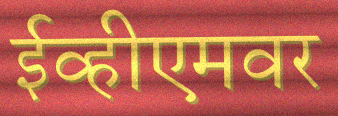
ईव्हीएमवर